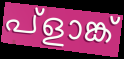
പ്ളാങ്ക്